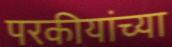
परकीयांच्या